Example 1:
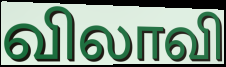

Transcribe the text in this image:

விலாவி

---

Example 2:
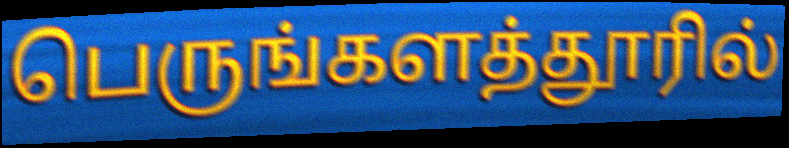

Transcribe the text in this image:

பெருங்களத்தூரில்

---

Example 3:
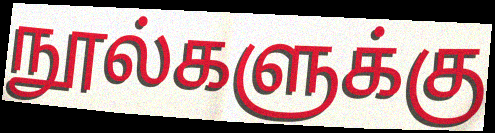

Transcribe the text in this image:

நூல்களுக்கு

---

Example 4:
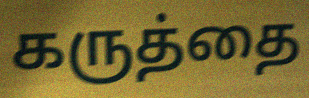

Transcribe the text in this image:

கருத்தை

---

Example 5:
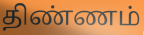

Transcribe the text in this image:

திண்ணம்